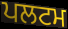
ਪਲਟਮ